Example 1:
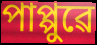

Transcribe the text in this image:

পাপ্পুৱে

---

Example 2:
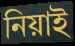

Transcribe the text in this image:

নিয়াই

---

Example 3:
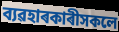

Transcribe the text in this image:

ব্যৱহাৰকাৰীসকলে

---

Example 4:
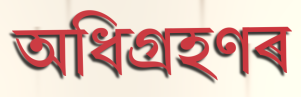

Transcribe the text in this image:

অধিগ্ৰহণৰ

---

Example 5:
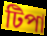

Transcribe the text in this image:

টিপা